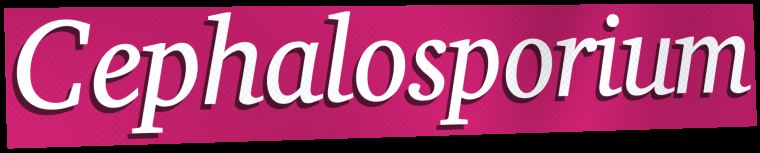
Cephalosporium